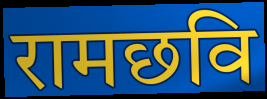
रामछवि